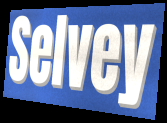
Selvey